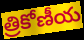
త్రికోణీయ